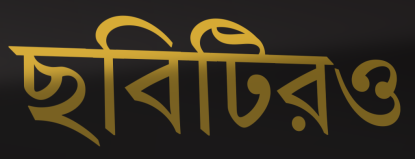
ছবিটিরও